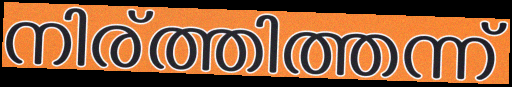
നിര്ത്തിത്തന്ന്